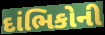
દાંભિકોની